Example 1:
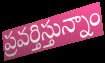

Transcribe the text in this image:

ప్రవర్తిస్తున్నాం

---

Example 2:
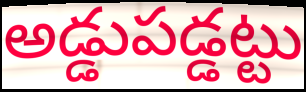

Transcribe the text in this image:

అడ్డుపడ్డట్టు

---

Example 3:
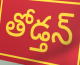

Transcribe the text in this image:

తోడ్తన్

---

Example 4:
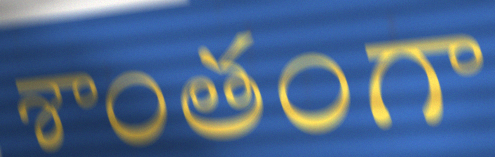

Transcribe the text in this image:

శాంతంగా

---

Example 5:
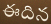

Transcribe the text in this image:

ఈదిన